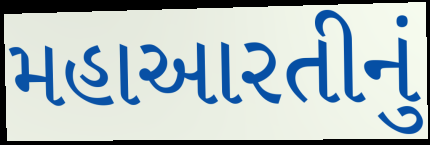
મહાઆરતીનું